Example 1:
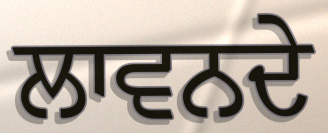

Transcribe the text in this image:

ਲਾਵਨਦੇ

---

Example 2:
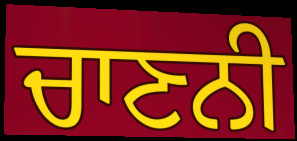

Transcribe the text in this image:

ਚਾਣਨੀ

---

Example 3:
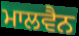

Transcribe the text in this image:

ਮਾਲਵੈਨ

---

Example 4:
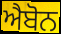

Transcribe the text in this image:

ਐਬੋਨ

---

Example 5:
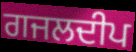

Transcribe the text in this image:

ਗਜਲਦੀਪ